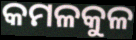
କମଳକୁଳ